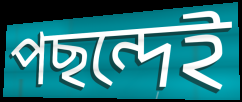
পছন্দেই